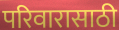
परिवारासाठी